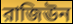
রাজিঊন